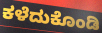
ಕಳೆದುಕೊಂಡಿ